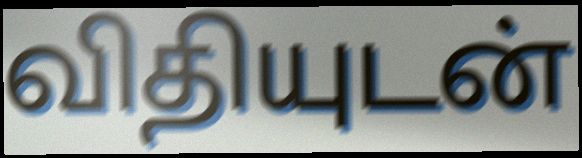
விதியுடன்